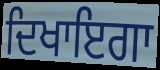
ਦਿਖਾਇਗਾ